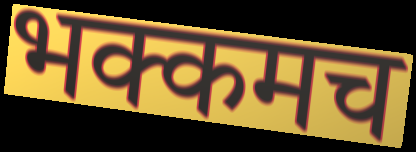
भक्कमच